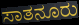
ಸಾತನೂರು